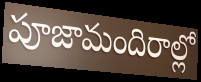
పూజామందిరాల్లో